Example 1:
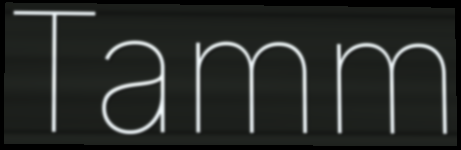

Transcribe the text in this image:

Tamm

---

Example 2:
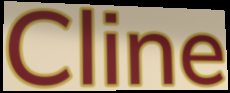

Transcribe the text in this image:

Cline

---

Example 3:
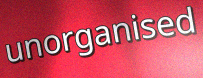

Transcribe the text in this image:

unorganised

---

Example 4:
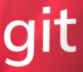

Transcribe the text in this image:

git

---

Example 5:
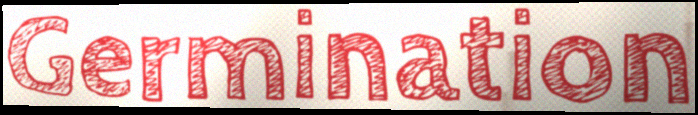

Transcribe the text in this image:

Germination